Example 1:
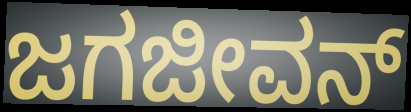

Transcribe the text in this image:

ಜಗಜೀವನ್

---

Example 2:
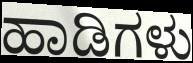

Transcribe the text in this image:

ಹಾಡಿಗಳು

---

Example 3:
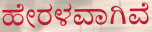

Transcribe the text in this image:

ಹೇರಳವಾಗಿವೆ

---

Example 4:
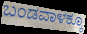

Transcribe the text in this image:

ಬಂಡವಾಳಕ್ಕೂ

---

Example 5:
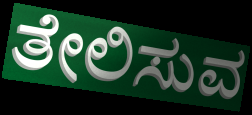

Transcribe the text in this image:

ತೇಲಿಸುವ